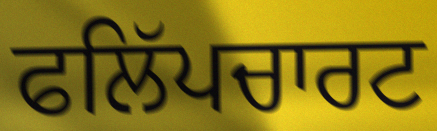
ਫਲਿੱਪਚਾਰਟ